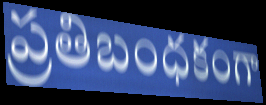
ప్రతిబంధకంగా